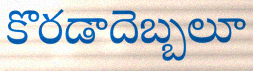
కొరడాదెబ్బలూ